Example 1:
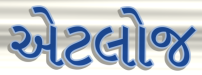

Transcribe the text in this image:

એટલોજ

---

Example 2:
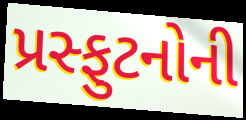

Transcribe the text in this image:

પ્રસ્ફુટનોની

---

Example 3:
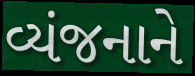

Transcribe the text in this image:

વ્યંજનાને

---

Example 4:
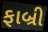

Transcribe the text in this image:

ફાબ્રી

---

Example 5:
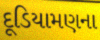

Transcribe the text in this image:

દૂડિયામણના